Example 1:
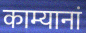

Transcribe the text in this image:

काम्यानां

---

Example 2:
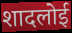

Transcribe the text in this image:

शादलोई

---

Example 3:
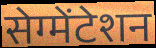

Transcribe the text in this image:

सेग्मेंटेशन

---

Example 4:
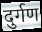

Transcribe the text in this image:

दुर्गण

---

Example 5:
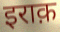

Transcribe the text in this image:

इराक़